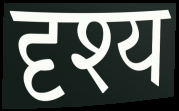
दृश्य